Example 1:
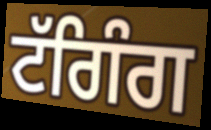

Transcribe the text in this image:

ਟੱਗਿੰਗ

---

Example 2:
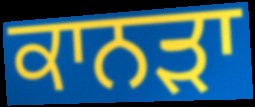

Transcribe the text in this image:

ਕਾਨੜਾ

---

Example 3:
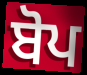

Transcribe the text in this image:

ਬੋਪ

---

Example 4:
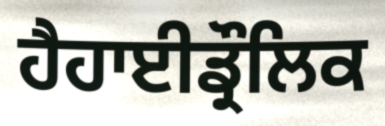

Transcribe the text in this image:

ਹੈਹਾਈਡ੍ਰੌਲਿਕ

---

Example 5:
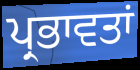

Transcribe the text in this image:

ਪ੍ਰਭਾਵਤਾਂ